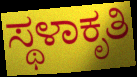
ಸ್ಥಳಾಕೃತಿ